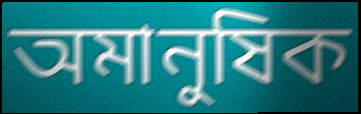
অমানুষিক